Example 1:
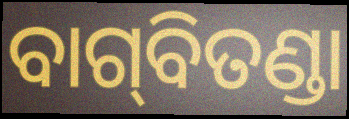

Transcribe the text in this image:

ବାଗ୍‌ବିତଣ୍ଡା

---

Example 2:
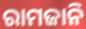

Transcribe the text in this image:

ରାମଜାନି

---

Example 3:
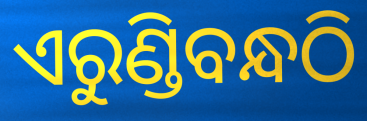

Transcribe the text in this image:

ଏରୁଣ୍ଡିବନ୍ଧଠି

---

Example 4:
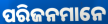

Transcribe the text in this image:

ପରିଜନମାନେ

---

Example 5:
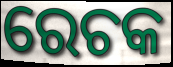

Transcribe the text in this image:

ରେଚକ